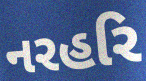
નરહરિ